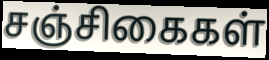
சஞ்சிகைகள்